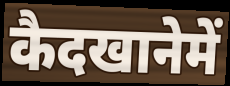
कैदखानेमें